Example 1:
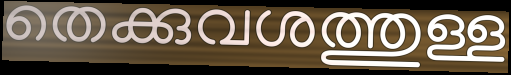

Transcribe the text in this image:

തെക്കുവശത്തുള്ള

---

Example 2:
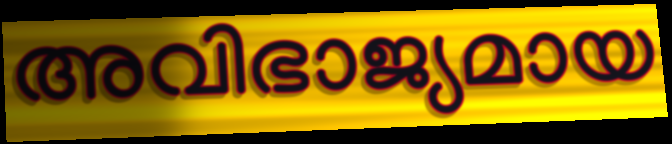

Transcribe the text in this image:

അവിഭാജ്യമായ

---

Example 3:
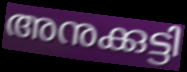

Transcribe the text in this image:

അനുക്കുട്ടി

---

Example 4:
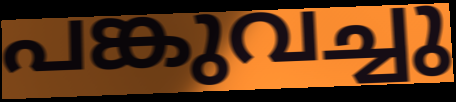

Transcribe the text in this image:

പങ്കുവച്ചു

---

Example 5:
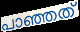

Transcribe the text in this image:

പാഞ്ഞത്